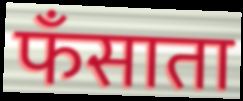
फँसाता